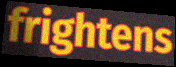
frightens